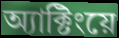
অ্যাক্টিংয়ে